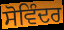
ਸੋਵਿੰਦਰ